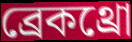
ব্রেকথ্রো